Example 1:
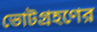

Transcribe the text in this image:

ভোটগ্রহণের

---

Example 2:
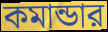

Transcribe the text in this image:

কমান্ডার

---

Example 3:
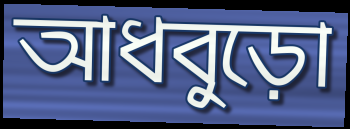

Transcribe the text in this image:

আধবুড়ো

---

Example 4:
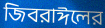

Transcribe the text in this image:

জিবরাঈলের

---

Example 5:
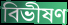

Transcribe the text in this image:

বিভীষণ